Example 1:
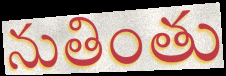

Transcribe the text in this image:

నుతింతు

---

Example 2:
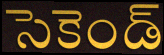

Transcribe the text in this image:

సెకెండ్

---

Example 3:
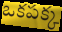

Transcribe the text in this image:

ఒకపక్క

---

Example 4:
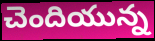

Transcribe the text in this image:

చెందియున్న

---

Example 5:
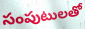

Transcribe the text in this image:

సంపుటులతో